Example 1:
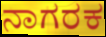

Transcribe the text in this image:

ನಾಗರಕ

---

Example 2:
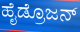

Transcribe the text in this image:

ಹೈಡ್ರೊಜನ್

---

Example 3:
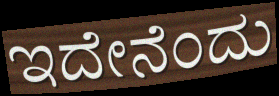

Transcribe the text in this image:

ಇದೇನೆಂದು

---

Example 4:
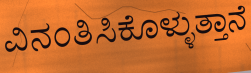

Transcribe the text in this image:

ವಿನಂತಿಸಿಕೊಳ್ಳುತ್ತಾನೆ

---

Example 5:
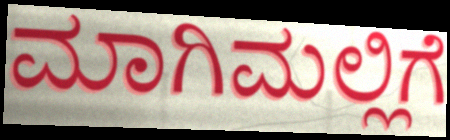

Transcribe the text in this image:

ಮಾಗಿಮಲ್ಲಿಗೆ